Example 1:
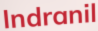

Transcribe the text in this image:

Indranil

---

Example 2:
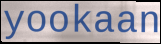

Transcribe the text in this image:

yookaan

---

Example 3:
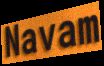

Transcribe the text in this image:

Navam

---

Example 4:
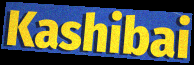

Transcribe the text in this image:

Kashibai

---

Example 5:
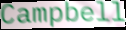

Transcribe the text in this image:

Campbell